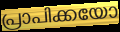
പ്രാപിക്കയോ